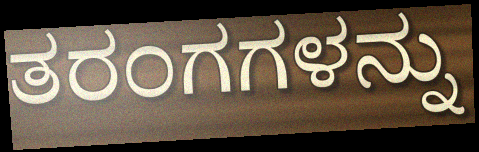
ತರಂಗಗಳನ್ನು